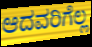
ಆದವರಿಗೆಲ್ಲ